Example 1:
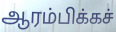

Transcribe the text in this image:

ஆரம்பிக்கச்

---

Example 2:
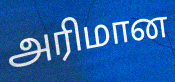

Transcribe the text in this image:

அரிமான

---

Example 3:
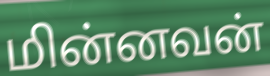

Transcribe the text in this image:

மின்னவன்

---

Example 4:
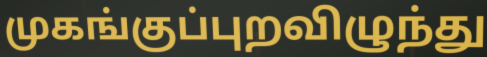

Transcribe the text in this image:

முகங்குப்புறவிழுந்து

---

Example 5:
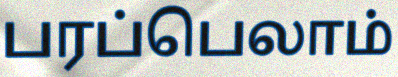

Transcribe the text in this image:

பரப்பெலாம்